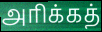
அரிக்கத்